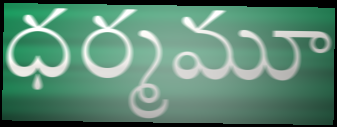
ధర్మమూ